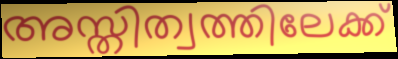
അസ്തിത്വത്തിലേക്ക്